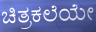
ಚಿತ್ರಕಲೆಯೇ